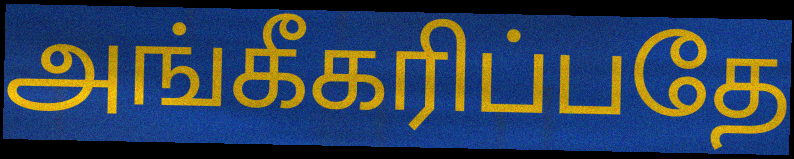
அங்கீகரிப்பதே